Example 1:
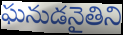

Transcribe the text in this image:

ఘనుడనైతిని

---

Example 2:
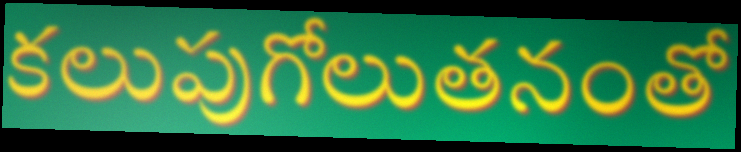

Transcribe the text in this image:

కలుపుగోలుతనంతో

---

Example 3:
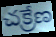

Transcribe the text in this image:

చక్రేణ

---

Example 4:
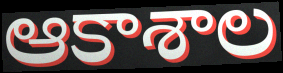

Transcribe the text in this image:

ఆకాశాల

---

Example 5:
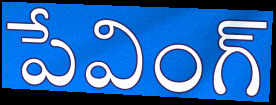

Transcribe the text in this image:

పేవింగ్